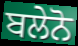
ਬਲੇਨੋ